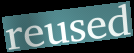
reused